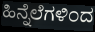
ಹಿನ್ನೆಲೆಗಳಿಂದ